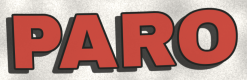
PARO